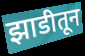
झाडीतून